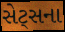
સેટ્સના